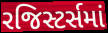
રજિસ્ટર્સમાં